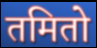
तमितो